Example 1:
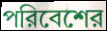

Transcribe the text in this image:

পরিবেশের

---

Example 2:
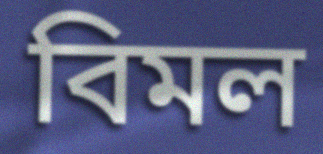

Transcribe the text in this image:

বিমল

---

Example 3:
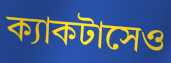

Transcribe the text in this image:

ক্যাকটাসেও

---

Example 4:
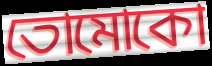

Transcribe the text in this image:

তোমোকো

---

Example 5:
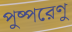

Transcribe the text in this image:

পুষ্পরেণু